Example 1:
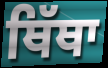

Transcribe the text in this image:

ਥਿੱਥਾ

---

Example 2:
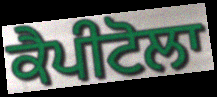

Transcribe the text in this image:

ਕੈਪੀਟੋਲਾ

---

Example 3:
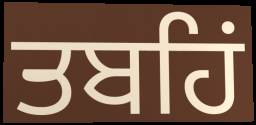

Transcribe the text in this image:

ਤਬਹਿਂ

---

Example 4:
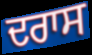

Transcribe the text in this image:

ਦਰਾਸ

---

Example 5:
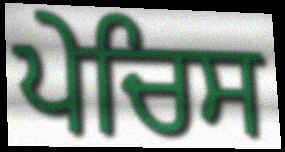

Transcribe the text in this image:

ਪੇਚਿਸ